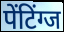
पेंटिंग्ज